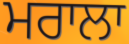
ਮਰਾਲਾ